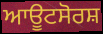
ਆਊਟਸੋਰਸ਼